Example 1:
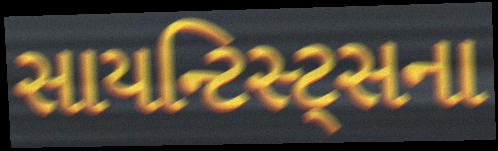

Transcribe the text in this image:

સાયન્ટિસ્ટ્સના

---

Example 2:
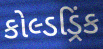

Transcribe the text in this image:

કોલ્ડડ્રિંક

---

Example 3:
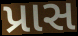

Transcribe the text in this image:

પ્રાસ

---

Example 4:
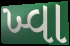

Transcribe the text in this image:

ખ્વા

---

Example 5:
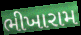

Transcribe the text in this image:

ભીખારામ